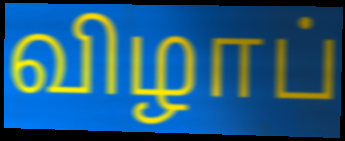
விழாப்